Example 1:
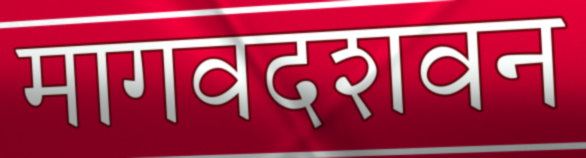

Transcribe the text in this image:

मागवदशवन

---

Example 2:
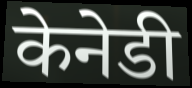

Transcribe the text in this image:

केनेडी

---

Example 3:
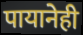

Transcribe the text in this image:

पायानेही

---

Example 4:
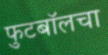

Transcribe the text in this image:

फुटबॉलचा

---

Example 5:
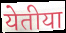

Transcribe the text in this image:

येतीया